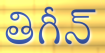
తిగీన్